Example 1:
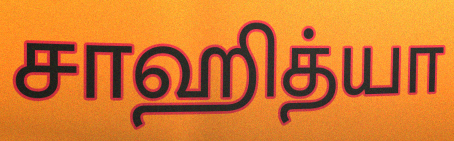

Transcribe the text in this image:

சாஹித்யா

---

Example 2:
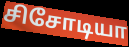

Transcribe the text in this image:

சிசோடியா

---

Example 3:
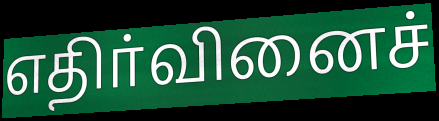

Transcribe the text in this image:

எதிர்வினைச்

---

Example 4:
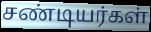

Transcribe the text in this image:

சண்டியர்கள்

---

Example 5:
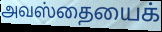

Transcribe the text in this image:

அவஸ்தையைக்